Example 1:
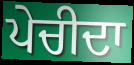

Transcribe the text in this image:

ਪੇਚੀਦਾ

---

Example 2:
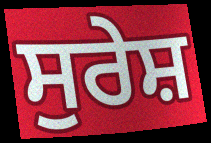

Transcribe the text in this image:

ਸੁਰੇਸ਼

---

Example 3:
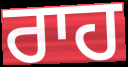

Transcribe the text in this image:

ਰਾਹ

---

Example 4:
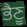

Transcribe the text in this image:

ਭੈਣੂ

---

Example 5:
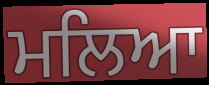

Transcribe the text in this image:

ਮਲਿਆ